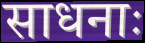
साधनाः